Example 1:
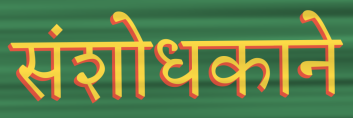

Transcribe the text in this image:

संशोधकाने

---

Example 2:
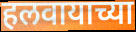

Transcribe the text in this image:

हलवायाच्या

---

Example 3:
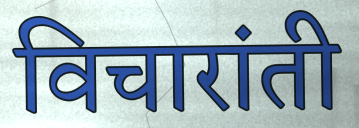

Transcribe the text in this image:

विचारांती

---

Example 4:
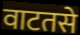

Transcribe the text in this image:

वाटतसे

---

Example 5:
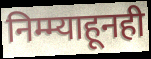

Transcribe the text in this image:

निम्म्याहूनही